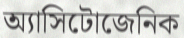
অ্যাসিটোজেনিক